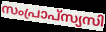
സംപ്രാപ്സ്യസി